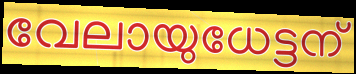
വേലായുധേട്ടന്